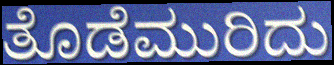
ತೊಡೆಮುರಿದು